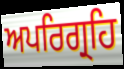
ਅਪਰਿਗ੍ਰਹਿ